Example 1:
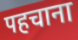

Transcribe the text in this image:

पहचाना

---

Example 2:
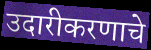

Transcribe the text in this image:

उदारीकरणाचे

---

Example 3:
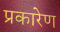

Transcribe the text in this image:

प्रकारेण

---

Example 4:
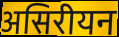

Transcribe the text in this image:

असिरीयन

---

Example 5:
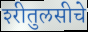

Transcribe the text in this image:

श्रीतुलसीचे